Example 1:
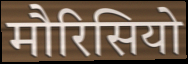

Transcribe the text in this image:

मौरिसियो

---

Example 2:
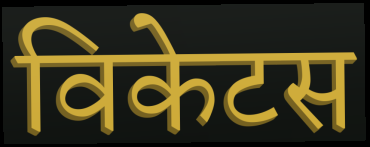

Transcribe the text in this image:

विकेटस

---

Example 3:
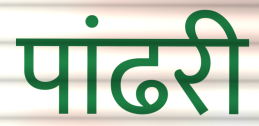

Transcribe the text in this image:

पांढरी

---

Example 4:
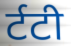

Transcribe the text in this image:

र्टटी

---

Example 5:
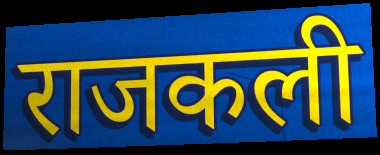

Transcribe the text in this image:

राजकली